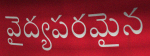
వైద్యపరమైన